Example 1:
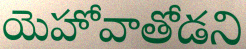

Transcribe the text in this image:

యెహోవాతోడని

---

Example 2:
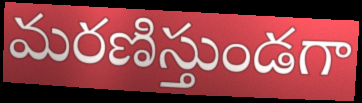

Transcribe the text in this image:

మరణిస్తుండగా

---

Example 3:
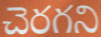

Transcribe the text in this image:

చెరగని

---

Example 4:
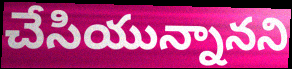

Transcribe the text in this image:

చేసియున్నానని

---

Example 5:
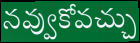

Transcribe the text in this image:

నవ్వుకోవచ్చు